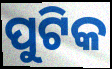
ପୁଟିକ